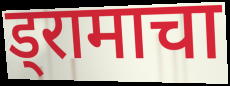
ड्रामाचा